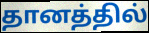
தானத்தில்